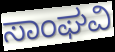
ಸಾಂಘವಿ